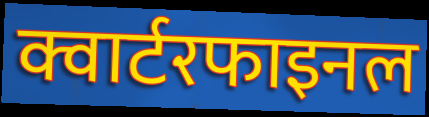
क्वार्टरफाइनल